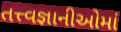
તત્ત્વજ્ઞાનીઓમાં